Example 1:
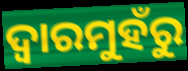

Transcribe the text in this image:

ଦ୍ଵାରମୁହଁରୁ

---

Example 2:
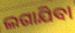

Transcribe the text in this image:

ଲଗାଯିବା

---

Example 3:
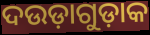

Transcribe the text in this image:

ଦଉଡ଼ାଗୁଡ଼ାକ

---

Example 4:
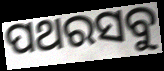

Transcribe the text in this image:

ପଥରସବୁ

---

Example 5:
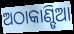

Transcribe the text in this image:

ଅଠାକାଣ୍ଡିଆ